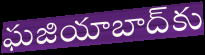
ఘజియాబాద్‌కు